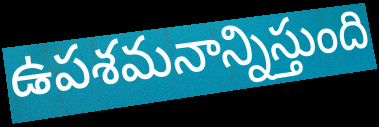
ఉపశమనాన్నిస్తుంది